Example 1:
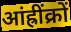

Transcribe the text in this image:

आंह्रींक्रों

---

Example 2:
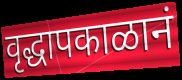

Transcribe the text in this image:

वृद्धापकाळानं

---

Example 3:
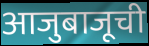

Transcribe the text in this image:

आजुबाजूची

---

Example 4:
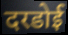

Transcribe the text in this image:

दरडोई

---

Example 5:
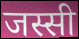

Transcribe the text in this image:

जस्सी